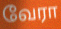
வேரா